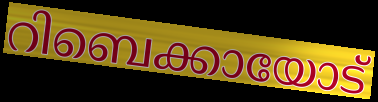
റിബെക്കായോട്